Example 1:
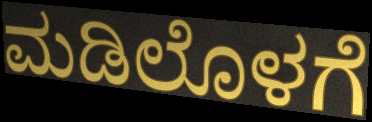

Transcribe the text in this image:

ಮಡಿಲೊಳಗೆ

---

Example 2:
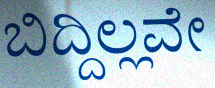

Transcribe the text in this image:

ಬಿದ್ದಿಲ್ಲವೇ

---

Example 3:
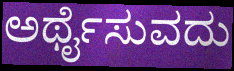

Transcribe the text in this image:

ಅರ್ಥೈಸುವದು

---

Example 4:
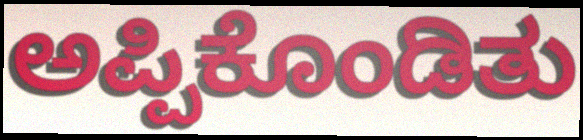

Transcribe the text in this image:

ಅಪ್ಪಿಕೊಂಡಿತು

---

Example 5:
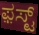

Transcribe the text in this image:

ಫ಼ಸ್ಟ್